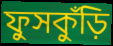
ফুসকুঁড়ি